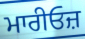
ਮਾਰੀਓਜ਼